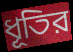
ধূতির